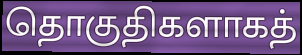
தொகுதிகளாகத்